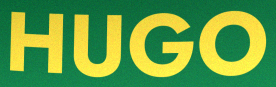
HUGO